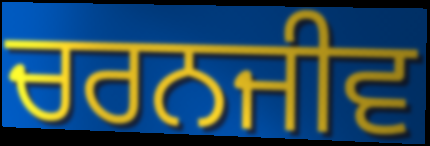
ਚਰਨਜੀਵ